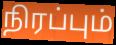
நிரப்பும்